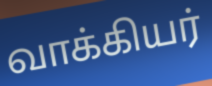
வாக்கியர்